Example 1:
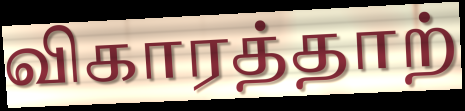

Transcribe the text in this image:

விகாரத்தாற்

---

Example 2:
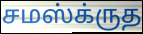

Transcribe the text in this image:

சமஸ்க்ருத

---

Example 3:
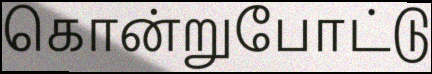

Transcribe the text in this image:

கொன்றுபோட்டு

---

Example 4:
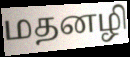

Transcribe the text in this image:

மதனழி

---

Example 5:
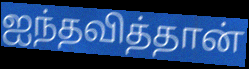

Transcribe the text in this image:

ஐந்தவித்தான்